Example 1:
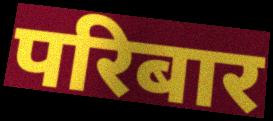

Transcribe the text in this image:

परिबार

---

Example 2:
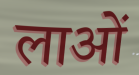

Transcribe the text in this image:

लाओं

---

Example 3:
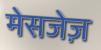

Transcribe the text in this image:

मेसजेज़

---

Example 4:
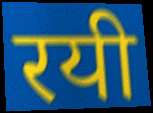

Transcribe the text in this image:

रयी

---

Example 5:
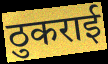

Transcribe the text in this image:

ठुकराई